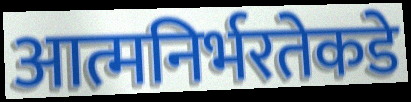
आत्मनिर्भरतेकडे